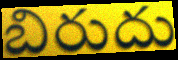
బిరుదు